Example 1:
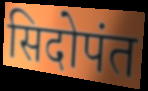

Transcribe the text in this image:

सिदोपंत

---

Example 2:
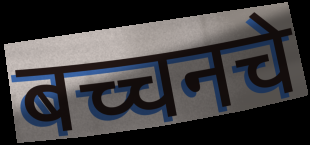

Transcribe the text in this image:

बच्चनचे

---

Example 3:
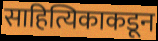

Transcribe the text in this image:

साहित्यिकाकडून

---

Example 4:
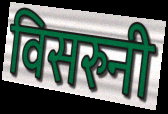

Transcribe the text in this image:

विसरुनी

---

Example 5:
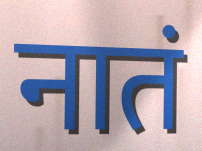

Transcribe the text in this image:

नातं